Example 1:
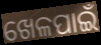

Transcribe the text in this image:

ଖେଳପାଇଁ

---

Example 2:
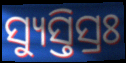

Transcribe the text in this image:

ସ୍ୟୁସ୍ତିସ୍ରଃ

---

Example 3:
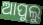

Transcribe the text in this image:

ଆପୁଲୁ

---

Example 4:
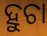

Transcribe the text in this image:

ହୁଚା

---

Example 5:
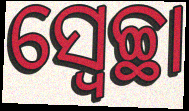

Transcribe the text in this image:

ସ୍ବେଚ୍ଛା